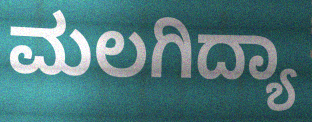
ಮಲಗಿದ್ಯಾ